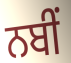
ਨਬੀਂ